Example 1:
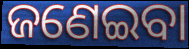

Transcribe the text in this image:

ଜଣେଇବା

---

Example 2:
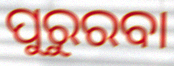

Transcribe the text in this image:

ପୁରୁରବା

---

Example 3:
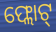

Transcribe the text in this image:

ଫ୍ଲୋଟ୍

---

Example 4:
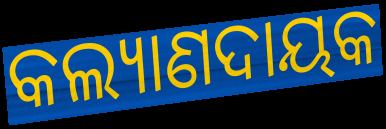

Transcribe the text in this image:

କଲ୍ୟାଣଦାୟକ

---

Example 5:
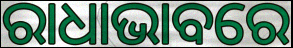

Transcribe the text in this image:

ରାଧାଭାବରେ